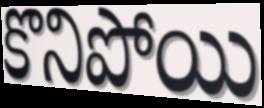
కొనిపోయి